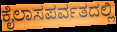
ಕೈಲಾಸಪರ್ವತದಲ್ಲಿ